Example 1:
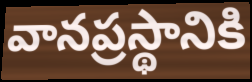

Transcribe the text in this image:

వానప్రస్థానికి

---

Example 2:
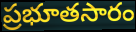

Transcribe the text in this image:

ప్రభూతసారం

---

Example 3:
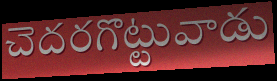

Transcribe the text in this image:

చెదరగొట్టువాడు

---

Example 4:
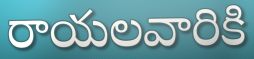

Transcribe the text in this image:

రాయలవారికి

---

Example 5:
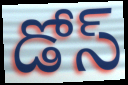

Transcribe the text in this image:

డోస్